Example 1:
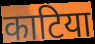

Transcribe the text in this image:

काटिया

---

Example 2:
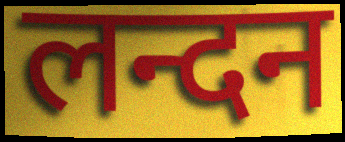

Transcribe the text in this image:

लन्दन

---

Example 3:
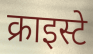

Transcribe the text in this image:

क्राइस्टे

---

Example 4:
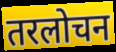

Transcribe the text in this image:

तरलोचन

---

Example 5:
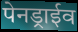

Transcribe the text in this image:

पेनड्राईव